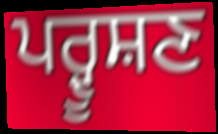
ਪਰ੍ਦੂਸ਼ਣ